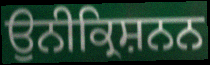
ਉਨੀਕ੍ਰਿਸ਼ਨਨ